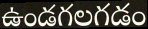
ఉండగలగడం